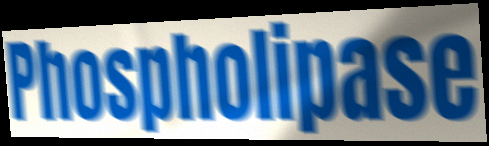
Phospholipase